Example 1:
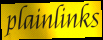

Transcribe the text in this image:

plainlinks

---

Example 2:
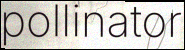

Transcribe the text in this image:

pollinator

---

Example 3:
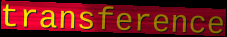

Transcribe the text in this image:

transference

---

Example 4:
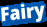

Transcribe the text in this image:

Fairy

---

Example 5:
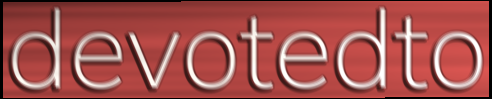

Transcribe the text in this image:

devotedto